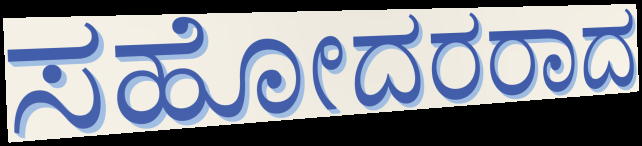
ಸಹೋದರರಾದ